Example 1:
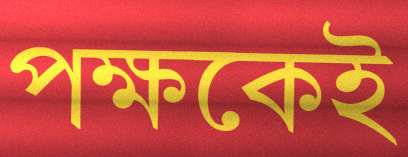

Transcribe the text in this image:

পক্ষকেই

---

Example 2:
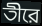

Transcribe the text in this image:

তীরে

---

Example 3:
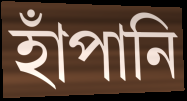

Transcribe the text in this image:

হাঁপানি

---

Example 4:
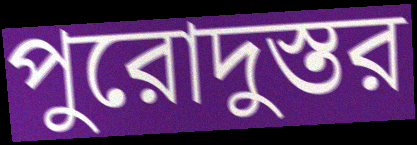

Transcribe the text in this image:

পুরোদুস্তর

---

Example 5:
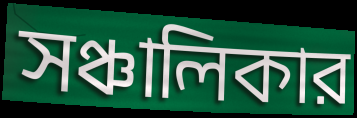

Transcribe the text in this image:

সঞ্চালিকার